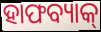
ହାଫବ୍ୟାକ୍